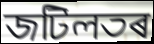
জটিলতৰ